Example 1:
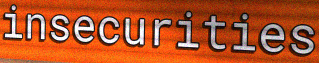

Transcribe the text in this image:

insecurities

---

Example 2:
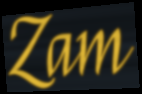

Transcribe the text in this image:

Zam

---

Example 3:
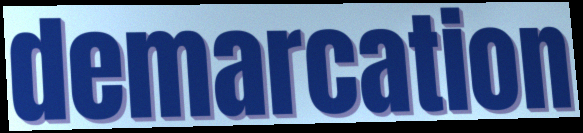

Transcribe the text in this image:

demarcation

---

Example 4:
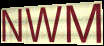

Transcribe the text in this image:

NWM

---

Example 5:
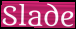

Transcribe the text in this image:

Slade